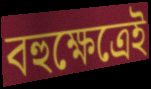
বহুক্ষেত্রেই